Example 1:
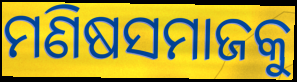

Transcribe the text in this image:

ମଣିଷସମାଜକୁ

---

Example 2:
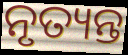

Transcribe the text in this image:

ନୃତ୍ୟନ୍ତ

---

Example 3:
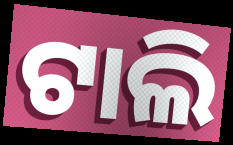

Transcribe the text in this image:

ଟାଲି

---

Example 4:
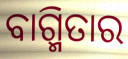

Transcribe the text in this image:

ବାଗ୍ମିତାର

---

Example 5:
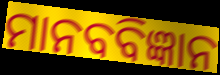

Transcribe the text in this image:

ମାନବବିଜ୍ଞାନ